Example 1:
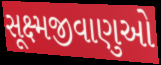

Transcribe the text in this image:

સૂક્ષ્મજીવાણુઓ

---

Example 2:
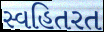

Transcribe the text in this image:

સ્વહિતરત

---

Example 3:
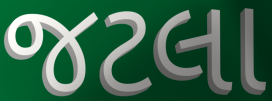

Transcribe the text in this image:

જટલા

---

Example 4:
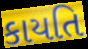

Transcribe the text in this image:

કાયતિ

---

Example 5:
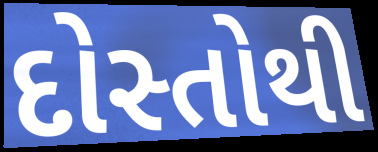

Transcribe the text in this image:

દોસ્તોથી